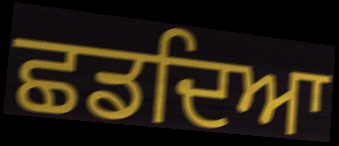
ਛਡਦਿਆ